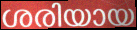
ശരിയായ